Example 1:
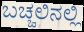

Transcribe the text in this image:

ಬಚ್ಚಲಿನಲ್ಲಿ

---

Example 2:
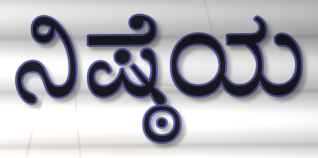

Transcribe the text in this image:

ನಿಷ್ಠೆಯ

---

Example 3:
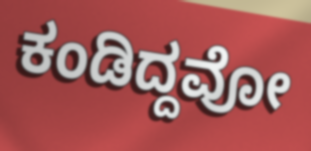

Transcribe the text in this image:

ಕಂಡಿದ್ದವೋ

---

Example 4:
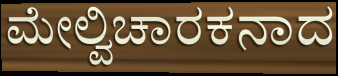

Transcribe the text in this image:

ಮೇಲ್ವಿಚಾರಕನಾದ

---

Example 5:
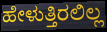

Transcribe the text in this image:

ಹೇಳುತ್ತಿರಲಿಲ್ಲ